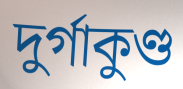
দুর্গাকুণ্ড